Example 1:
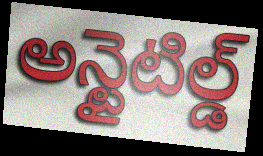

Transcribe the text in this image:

అన్టైటిల్డ్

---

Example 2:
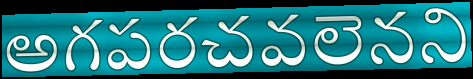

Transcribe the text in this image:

అగపరచవలెనని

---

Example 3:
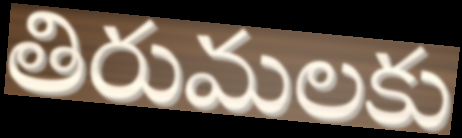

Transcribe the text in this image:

తిరుమలకు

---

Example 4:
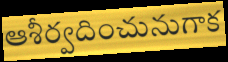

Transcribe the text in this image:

ఆశీర్వదించునుగాక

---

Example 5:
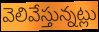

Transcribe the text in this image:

వెలివేస్తున్నట్లు